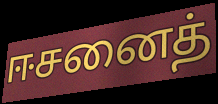
ஈசனைத்